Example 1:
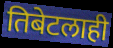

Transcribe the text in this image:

तिबेटलाही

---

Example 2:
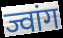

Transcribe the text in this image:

ज्वांग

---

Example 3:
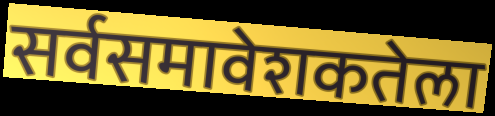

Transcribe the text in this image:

सर्वसमावेशकतेला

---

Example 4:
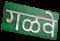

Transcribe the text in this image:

गळवे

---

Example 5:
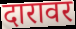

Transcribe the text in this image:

दारावर